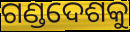
ଗଣ୍ଡଦେଶକୁ